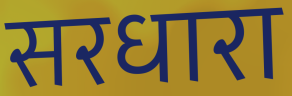
सरधारा